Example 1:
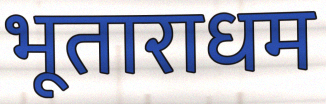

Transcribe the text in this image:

भूताराधम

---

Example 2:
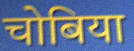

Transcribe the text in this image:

चोबिया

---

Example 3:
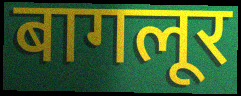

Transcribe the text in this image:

बागलूर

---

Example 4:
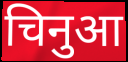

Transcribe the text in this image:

चिनुआ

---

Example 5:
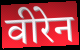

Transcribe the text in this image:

वीरेन